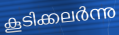
കൂടിക്കലർന്നു